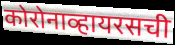
कोरोनाव्हायरसची